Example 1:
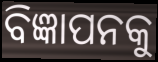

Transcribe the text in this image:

ବିଜ୍ଞାପନକୁ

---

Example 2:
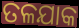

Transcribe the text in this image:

ତଳଯାକ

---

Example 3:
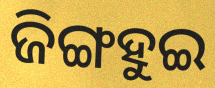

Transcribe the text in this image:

ଜିଙ୍ଗହୁଇ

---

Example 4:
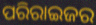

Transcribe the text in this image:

ପରିରାଇଜର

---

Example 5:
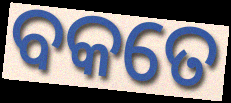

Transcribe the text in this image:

ବକତେ